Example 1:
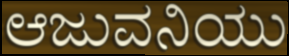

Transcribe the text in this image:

ಆಜುವನಿಯು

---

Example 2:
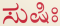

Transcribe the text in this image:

ಸುಷಿಃ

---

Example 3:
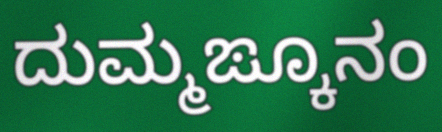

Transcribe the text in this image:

ದುಮ್ಮಙ್ಕೂನಂ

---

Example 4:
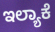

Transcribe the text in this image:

ಇಲ್ಯಾಕೆ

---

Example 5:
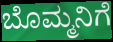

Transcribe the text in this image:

ಬೊಮ್ಮನಿಗೆ